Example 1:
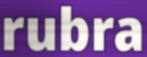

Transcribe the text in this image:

rubra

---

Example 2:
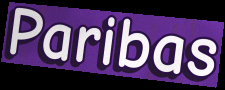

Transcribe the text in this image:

Paribas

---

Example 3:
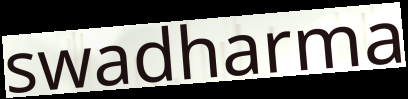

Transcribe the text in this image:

swadharma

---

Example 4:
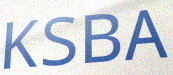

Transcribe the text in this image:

KSBA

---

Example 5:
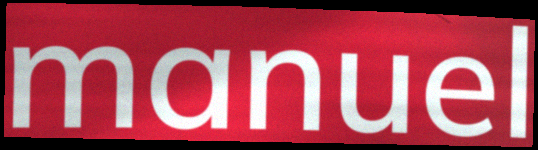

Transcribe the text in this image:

manuel